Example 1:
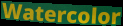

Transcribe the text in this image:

Watercolor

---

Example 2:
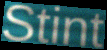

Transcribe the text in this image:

Stint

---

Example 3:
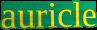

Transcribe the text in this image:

auricle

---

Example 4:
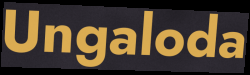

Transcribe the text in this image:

Ungaloda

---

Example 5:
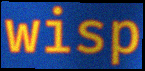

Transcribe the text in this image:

wisp